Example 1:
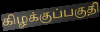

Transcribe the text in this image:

கிழக்குப்பகுதி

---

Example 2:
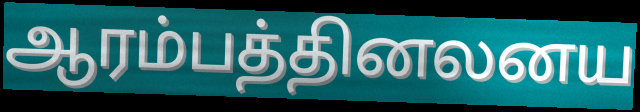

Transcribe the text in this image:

ஆரம்பத்தினலனய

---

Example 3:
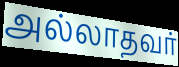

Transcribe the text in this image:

அல்லாதவர்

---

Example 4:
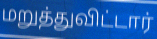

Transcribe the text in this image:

மறுத்துவிட்டார்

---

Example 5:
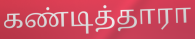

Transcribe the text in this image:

கண்டித்தாரா